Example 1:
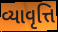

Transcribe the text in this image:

વ્યાવૃત્તિ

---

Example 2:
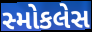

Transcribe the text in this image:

સ્મોકલેસ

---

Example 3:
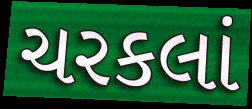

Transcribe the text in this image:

ચરકલાં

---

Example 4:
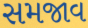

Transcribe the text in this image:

સમજાવ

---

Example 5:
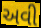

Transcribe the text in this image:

અવી